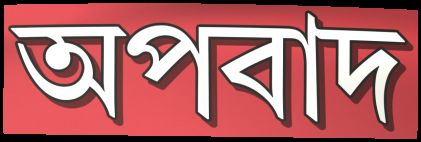
অপবাদ